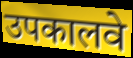
उपकालवे